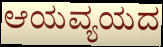
ಆಯವ್ಯಯದ